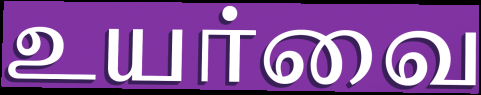
உயர்வை